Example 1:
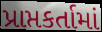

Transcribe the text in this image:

પ્રાપ્તકર્તામાં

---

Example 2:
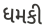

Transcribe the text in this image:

ધમકી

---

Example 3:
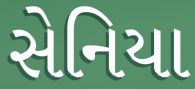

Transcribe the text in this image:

સેનિયા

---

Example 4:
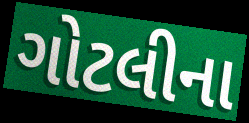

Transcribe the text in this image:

ગોટલીના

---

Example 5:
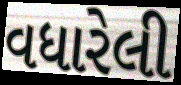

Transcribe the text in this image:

વધારેલી